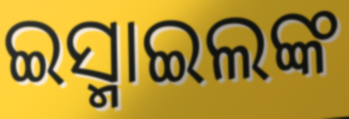
ଇସ୍ମାଇଲଙ୍କ